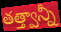
తత్త్వాన్నీ